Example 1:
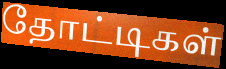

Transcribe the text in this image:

தோட்டிகள்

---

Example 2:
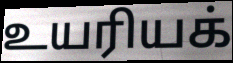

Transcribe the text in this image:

உயரியக்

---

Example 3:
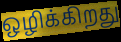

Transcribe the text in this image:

ஒழிக்கிறது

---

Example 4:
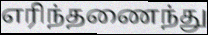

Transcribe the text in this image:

எரிந்தணைந்து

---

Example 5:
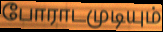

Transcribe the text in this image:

போராடமுடியும்